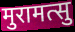
मुरामत्सु